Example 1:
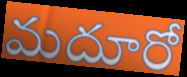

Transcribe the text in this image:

మదూరో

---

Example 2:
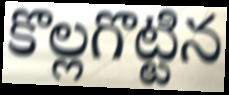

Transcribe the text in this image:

కొల్లగొట్టిన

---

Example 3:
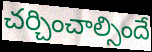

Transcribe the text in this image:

చర్చించాల్సిందే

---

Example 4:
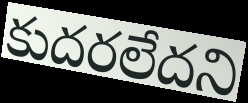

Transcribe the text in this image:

కుదరలేదని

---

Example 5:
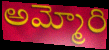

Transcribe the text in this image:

అమ్మోరి